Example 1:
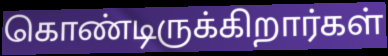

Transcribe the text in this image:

கொண்டிருக்கிறார்கள்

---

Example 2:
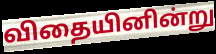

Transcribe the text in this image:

விதையினின்று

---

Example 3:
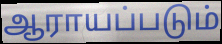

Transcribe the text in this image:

ஆராயப்படும்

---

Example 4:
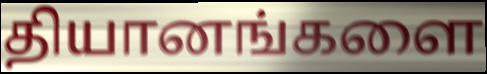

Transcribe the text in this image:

தியானங்களை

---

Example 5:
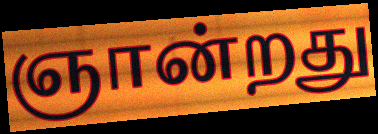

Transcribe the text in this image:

ஞான்றது